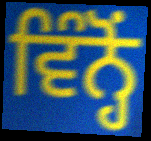
ਵਿੰਨ੍ਹੋਂ